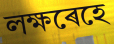
লক্ষৰেহে